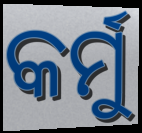
କର୍ମୁ